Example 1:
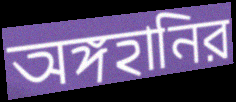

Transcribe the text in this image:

অঙ্গহানির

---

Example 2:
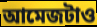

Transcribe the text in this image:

আমেজটাও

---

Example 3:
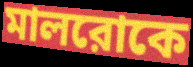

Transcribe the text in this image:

মালরোকে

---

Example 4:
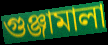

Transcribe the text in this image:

গুঞ্জামালা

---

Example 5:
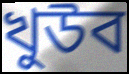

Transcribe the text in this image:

খুউব